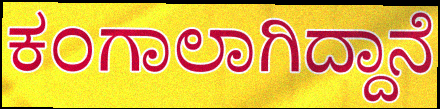
ಕಂಗಾಲಾಗಿದ್ದಾನೆ